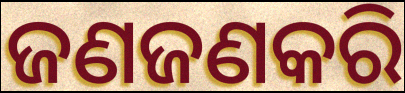
ଜଣଜଣକରି